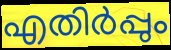
എതിർപ്പും